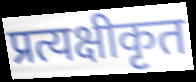
प्रत्यक्षीकृत